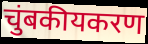
चुंबकीयकरण